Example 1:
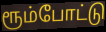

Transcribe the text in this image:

ரூம்போட்டு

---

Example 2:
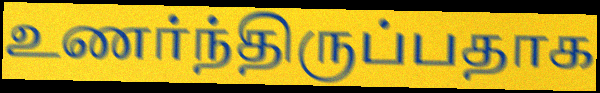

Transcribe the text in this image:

உணர்ந்திருப்பதாக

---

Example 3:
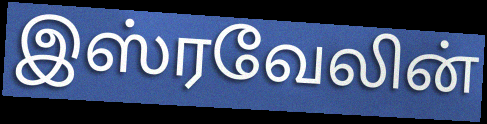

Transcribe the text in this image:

இஸ்ரவேலின்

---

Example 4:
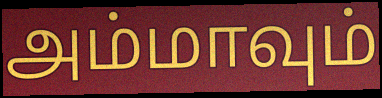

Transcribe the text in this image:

அம்மாவும்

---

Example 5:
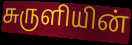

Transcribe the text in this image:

சுருளியின்